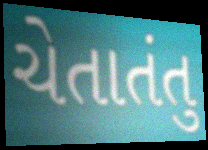
ચેતાતંતુ